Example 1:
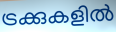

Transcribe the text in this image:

ട്രക്കുകളിൽ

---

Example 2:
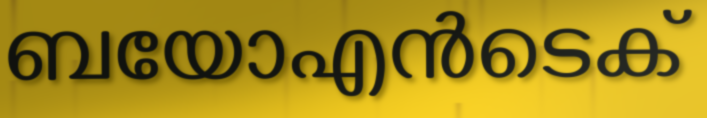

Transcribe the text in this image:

ബയോഎൻടെക്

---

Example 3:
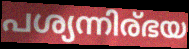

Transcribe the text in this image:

പശ്യന്നിര്ഭയ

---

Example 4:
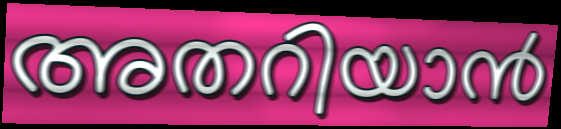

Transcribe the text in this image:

അതറിയാൻ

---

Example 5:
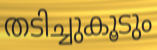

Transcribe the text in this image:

തടിച്ചുകൂടും